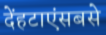
देंहटाएंसबसे